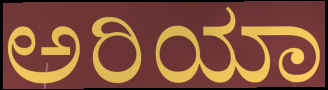
ಅರಿಯಾ